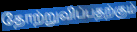
தோற்றுவிப்பதற்கும்